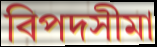
বিপদসীমা